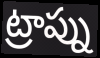
ట్రాప్ను